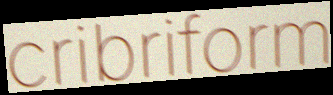
cribriform